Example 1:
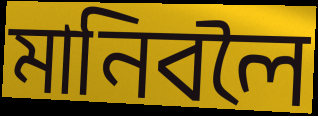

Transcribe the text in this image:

মানিবলৈ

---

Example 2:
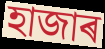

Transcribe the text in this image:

হাজাৰ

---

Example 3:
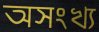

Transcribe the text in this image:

অসংখ্য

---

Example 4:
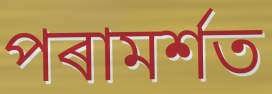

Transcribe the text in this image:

পৰামৰ্শত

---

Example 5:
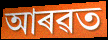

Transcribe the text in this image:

আৰৱত